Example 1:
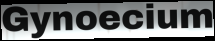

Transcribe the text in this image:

Gynoecium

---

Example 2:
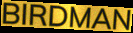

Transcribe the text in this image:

BIRDMAN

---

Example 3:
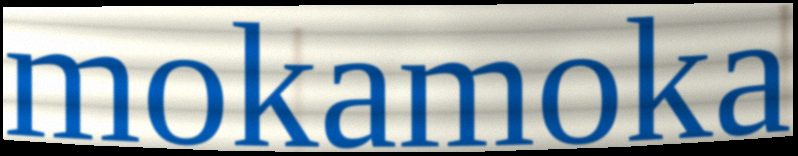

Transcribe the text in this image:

mokamoka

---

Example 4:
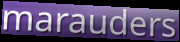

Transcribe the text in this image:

marauders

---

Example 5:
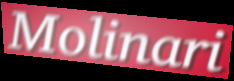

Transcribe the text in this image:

Molinari